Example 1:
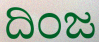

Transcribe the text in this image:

ದಿಂಜ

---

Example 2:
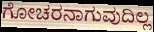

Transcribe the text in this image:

ಗೋಚರನಾಗುವುದಿಲ್ಲ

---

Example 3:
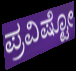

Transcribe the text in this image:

ಪ್ರವಿಷ್ಟೋ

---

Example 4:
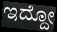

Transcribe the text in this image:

ಇದ್ದೋ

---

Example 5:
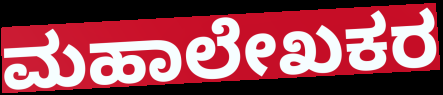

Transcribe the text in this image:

ಮಹಾಲೇಖಕರ